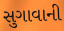
સુગાવાની